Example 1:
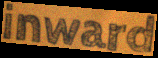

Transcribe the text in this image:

inward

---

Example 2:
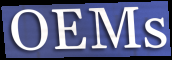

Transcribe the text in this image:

OEMs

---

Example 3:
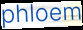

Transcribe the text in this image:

phloem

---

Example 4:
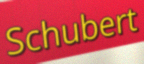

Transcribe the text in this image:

Schubert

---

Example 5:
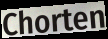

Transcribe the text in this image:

Chorten